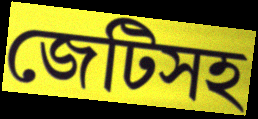
জেটিসহ